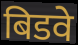
बिडवे